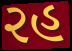
રહ